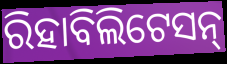
ରିହାବିଲିଟେସନ୍